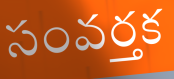
సంవర్తక